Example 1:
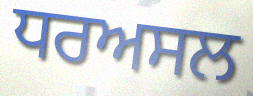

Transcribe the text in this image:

ਧਰਅਸਲ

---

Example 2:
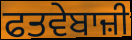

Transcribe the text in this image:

ਫਤਵੇਬਾਜ਼ੀ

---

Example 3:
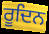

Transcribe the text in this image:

ਰੂਦਿਨ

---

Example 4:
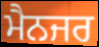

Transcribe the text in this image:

ਮੈਨਜਰ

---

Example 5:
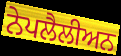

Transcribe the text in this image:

ਨੇਪਲੈਲੀਅਨ